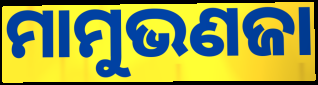
ମାମୁଭଣଜା